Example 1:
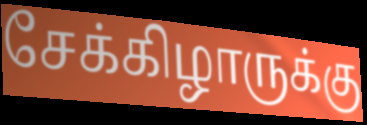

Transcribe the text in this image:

சேக்கிழாருக்கு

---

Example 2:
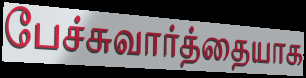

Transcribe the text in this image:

பேச்சுவார்த்தையாக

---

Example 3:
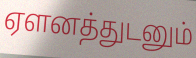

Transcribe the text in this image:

ஏளனத்துடனும்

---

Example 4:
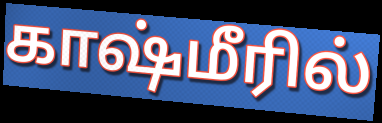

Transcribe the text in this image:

காஷ்மீரில்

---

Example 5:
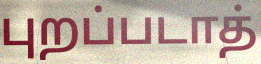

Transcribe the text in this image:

புறப்படாத்